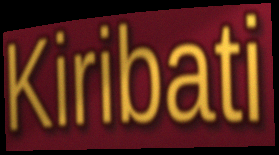
Kiribati